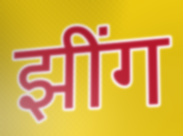
झींग